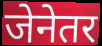
जेनेतर